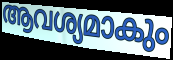
ആവശ്യമാകും